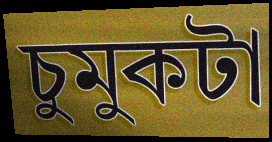
চুমুকটা